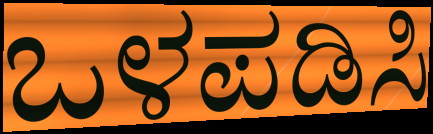
ಒಳಪಡಿಸಿ